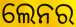
ଲେନର